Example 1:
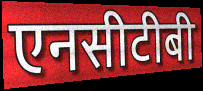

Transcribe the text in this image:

एनसीटीबी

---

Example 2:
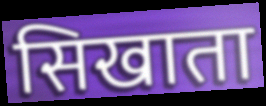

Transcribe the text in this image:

सिखाता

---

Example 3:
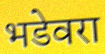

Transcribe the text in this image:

भडेवरा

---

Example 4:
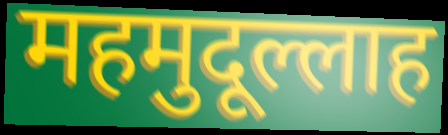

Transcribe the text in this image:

महमुदूल्लाह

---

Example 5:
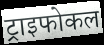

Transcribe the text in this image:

ट्राइफोकल